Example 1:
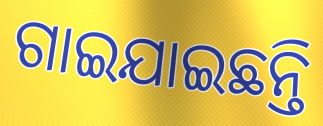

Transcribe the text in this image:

ଗାଇଯାଇଛନ୍ତି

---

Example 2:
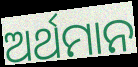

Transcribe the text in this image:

ଅର୍ଥମାନ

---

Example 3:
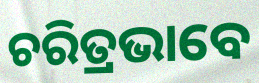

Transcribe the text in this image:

ଚରିତ୍ରଭାବେ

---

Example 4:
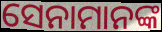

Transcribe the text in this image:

ସେନାମାନଙ୍କ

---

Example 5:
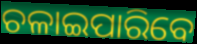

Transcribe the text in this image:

ଚଳାଇପାରିବେ